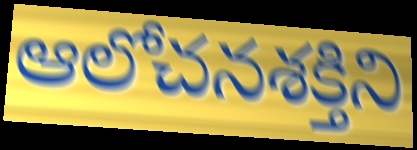
ఆలోచనశక్తిని